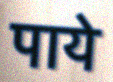
पाये